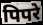
पिपरे